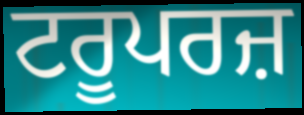
ਟਰੂਪਰਜ਼